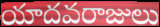
యాదవరాజులు